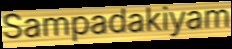
Sampadakiyam